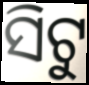
ସିଟୁ